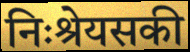
निःश्रेयसकी